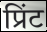
प्रिंट